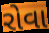
રોવા